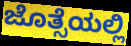
ಜೊತ್ಸೆಯಲ್ಲಿ